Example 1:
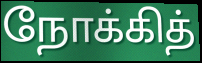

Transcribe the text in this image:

நோக்கித்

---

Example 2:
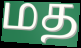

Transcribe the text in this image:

மத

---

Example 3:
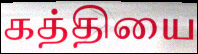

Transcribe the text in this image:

கத்தியை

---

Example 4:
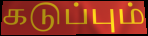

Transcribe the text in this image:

கடுப்பும்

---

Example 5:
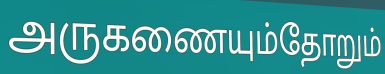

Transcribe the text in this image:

அருகணையும்தோறும்